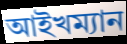
আইখম্যান